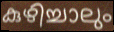
കുഴിച്ചാലും